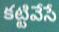
కట్టివేసే